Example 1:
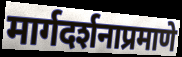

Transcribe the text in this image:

मार्गदर्शनाप्रमाणे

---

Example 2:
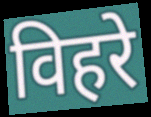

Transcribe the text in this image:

विहरे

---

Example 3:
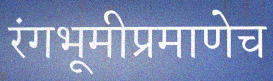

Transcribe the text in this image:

रंगभूमीप्रमाणेच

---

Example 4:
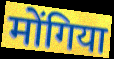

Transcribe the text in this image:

मोंगिया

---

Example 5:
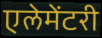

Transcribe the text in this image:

एलेमेंटरी